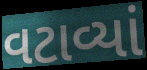
વટાવ્યાં